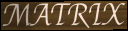
MATRIX